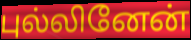
புல்லினேன்